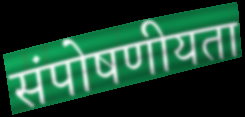
संपोषणीयता